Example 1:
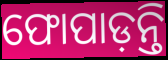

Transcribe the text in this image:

ଫୋପାଡ଼ନ୍ତି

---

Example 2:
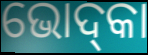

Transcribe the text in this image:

ଭୋଦ୍‌କା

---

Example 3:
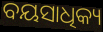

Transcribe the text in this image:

ବୟସାଧିକ୍ୟ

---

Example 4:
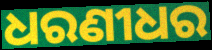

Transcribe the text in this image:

ଧରଣୀଧର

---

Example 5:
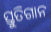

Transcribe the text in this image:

ସ୍ତୁତିଗାନ